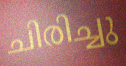
ചിരിച്ചു